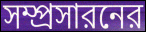
সম্প্রসারনের